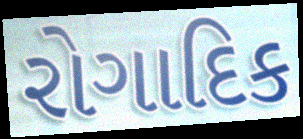
રોગાદિક